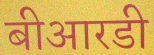
बीआरडी